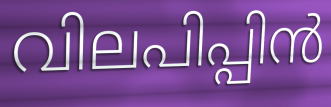
വിലപിപ്പിൻ